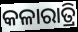
କଳାରାତ୍ରି